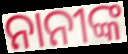
ନାନୀଙ୍କ